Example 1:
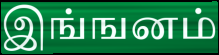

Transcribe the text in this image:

இங்ஙனம்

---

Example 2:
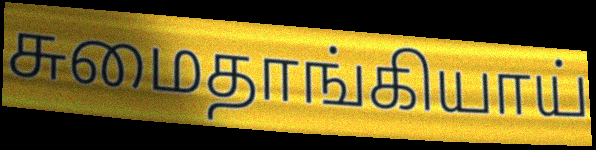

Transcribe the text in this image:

சுமைதாங்கியாய்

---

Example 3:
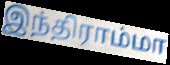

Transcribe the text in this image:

இந்திராம்மா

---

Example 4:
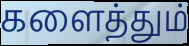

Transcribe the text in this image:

களைத்தும்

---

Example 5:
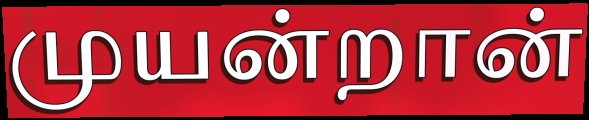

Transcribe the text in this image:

முயன்றான்